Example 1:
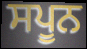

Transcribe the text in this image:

ਸਪੂਨ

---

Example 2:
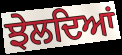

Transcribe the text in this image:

ਝੇਲਦਿਆਂ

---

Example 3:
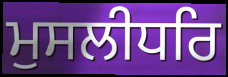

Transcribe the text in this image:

ਮੁਸਲੀਧਰਿ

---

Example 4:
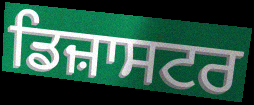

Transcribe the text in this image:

ਡਿਜ਼ਾਸਟਰ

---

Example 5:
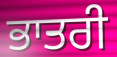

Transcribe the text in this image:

ਭਾਤਰੀ